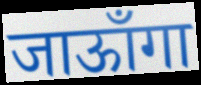
जाऊाँगा